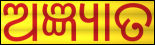
ଅଜ୍ଞ୍ୟାତ